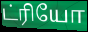
ட்ரியோ